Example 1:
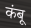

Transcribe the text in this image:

कंबू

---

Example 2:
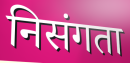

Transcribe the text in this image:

निसंगता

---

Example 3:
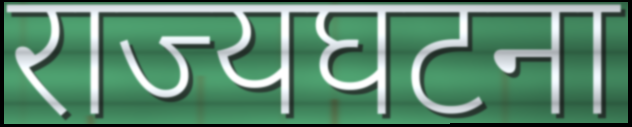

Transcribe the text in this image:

राज्यघटना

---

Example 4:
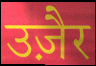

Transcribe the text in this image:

उज़ैर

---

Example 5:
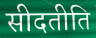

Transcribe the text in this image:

सीदतीति